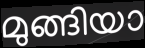
മുങ്ങിയാ